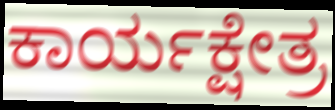
ಕಾರ್ಯಕ್ಷೇತ್ರ